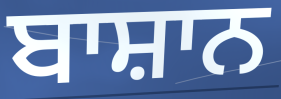
ਬਾਸ਼ਾਨ